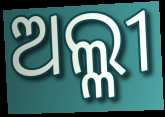
ଅଲ୍ଳୀ